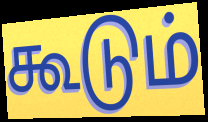
கூடும்